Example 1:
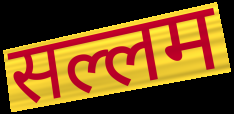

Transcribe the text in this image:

सल्लम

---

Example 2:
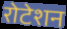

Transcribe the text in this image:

रोटेशन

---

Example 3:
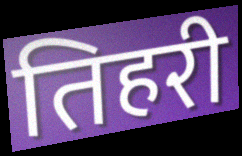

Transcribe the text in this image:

तिहरी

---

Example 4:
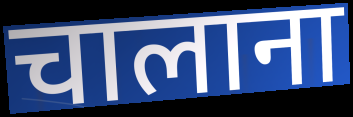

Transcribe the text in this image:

चालाना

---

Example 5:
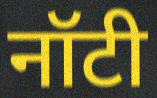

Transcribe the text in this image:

नॉटी